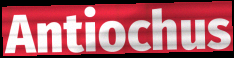
Antiochus